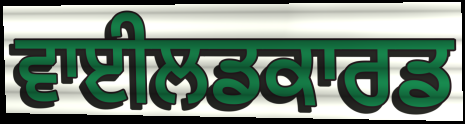
ਵਾਈਲਡਕਾਰਡ